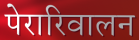
पेरारिवालन